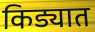
किड्यात